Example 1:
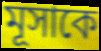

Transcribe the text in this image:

মূসাকে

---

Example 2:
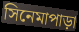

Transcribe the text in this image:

সিনেমাপাড়া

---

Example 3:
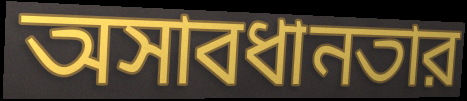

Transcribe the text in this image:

অসাবধানতার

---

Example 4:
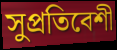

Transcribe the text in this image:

সুপ্রতিবেশী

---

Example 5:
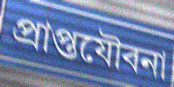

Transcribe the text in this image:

প্রাপ্তযৌবনা